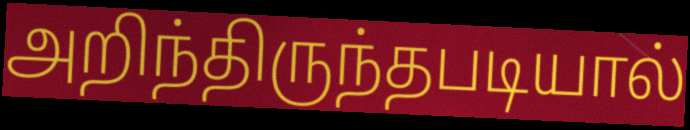
அறிந்திருந்தபடியால்